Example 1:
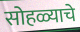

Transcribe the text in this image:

सोहळ्याचे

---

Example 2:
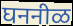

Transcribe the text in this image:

घननीळ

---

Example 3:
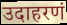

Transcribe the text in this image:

उदाहरणं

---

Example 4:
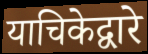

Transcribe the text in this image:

याचिकेद्वारे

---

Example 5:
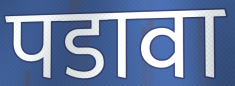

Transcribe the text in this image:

पडावा